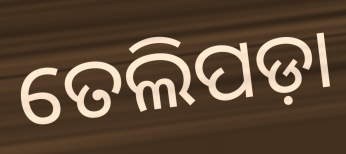
ତେଲିପଡ଼ା